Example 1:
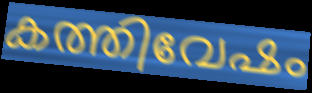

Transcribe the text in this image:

കത്തിവേഷം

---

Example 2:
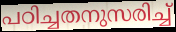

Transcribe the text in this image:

പഠിച്ചതനുസരിച്ച്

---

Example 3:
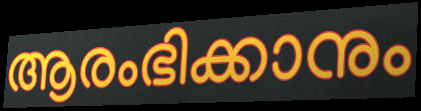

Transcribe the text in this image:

ആരംഭിക്കാനും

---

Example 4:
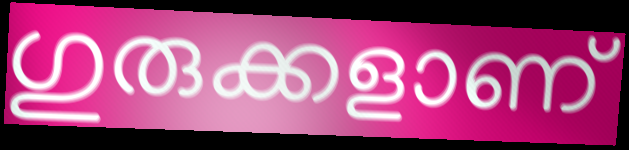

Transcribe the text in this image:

ഗുരുക്കളാണ്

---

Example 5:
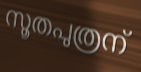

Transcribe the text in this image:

സൂതപുത്രന്